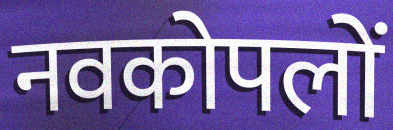
नवकोपलों